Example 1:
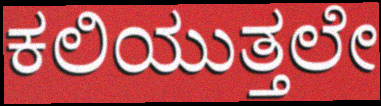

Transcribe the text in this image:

ಕಲಿಯುತ್ತಲೇ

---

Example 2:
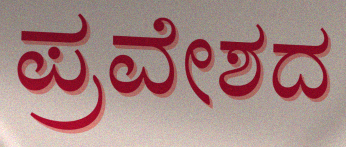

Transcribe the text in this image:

ಪ್ರವೇಶದ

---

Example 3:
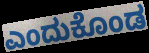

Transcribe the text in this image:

ಎಂದುಕೊಂಡ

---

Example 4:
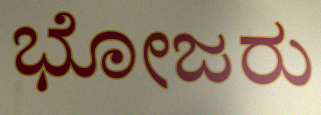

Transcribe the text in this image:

ಭೋಜರು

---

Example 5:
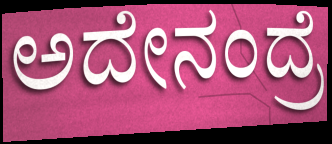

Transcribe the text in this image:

ಅದೇನಂದ್ರೆ